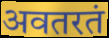
अवतरतं